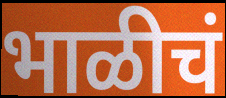
भाळीचं